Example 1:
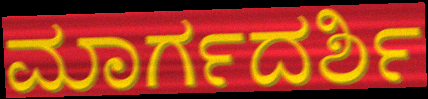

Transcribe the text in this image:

ಮಾರ್ಗದರ್ಶಿ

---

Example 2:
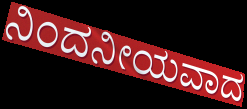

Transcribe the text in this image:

ನಿಂದನೀಯವಾದ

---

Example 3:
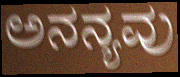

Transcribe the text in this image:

ಅನನ್ಯವು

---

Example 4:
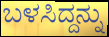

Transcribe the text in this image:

ಬಳಸಿದ್ದನ್ನು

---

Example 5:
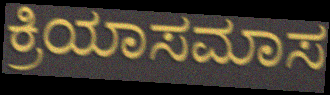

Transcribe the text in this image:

ಕ್ರಿಯಾಸಮಾಸ